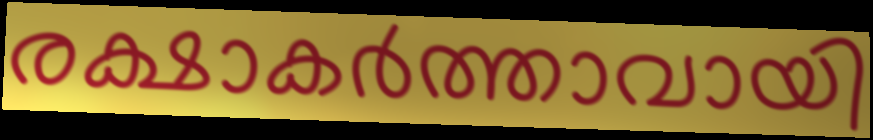
രക്ഷാകർത്താവായി